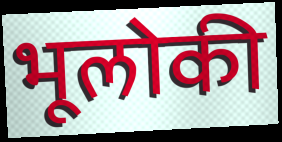
भूलोकी